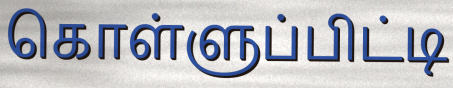
கொள்ளுப்பிட்டி